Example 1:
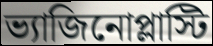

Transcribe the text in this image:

ভ্যাজিনোপ্লাস্টি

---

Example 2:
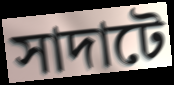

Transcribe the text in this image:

সাদাটে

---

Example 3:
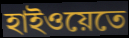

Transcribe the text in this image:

হাইওয়েতে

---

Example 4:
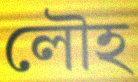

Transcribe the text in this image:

লৌহ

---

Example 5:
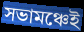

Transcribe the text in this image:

সভামঞ্চেই